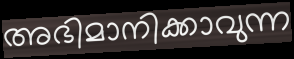
അഭിമാനിക്കാവുന്ന